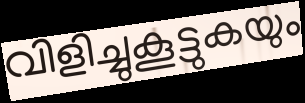
വിളിച്ചുകൂട്ടുകയും